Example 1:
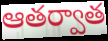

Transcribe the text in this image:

ఆతర్వాత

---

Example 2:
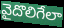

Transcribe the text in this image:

వైదొలిగేలా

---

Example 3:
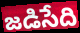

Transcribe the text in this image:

జడిసేది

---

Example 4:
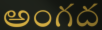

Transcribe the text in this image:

అంగద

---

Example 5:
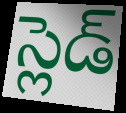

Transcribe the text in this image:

స్లెడ్